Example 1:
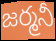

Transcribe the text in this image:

జర్మనీ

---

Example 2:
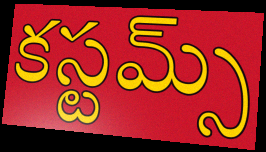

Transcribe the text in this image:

కస్టమ్స్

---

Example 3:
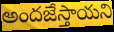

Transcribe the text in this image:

అందజేస్తాయని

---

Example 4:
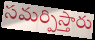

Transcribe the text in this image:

సమర్పిస్తారు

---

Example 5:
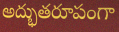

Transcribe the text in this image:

అద్భుతరూపంగా